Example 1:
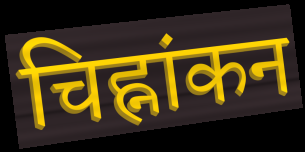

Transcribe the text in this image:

चिह्नांकन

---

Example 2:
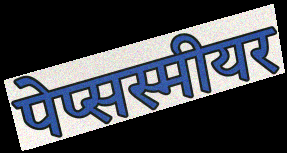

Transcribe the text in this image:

पेप्सस्मीयर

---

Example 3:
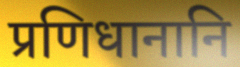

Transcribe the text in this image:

प्रणिधानानि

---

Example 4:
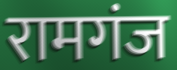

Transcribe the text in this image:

रामगंज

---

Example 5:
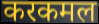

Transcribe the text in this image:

करकमल